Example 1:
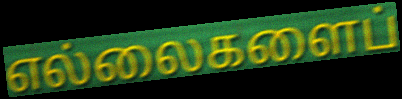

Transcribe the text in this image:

எல்லைகளைப்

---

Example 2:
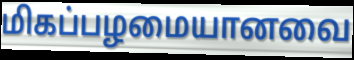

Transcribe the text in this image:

மிகப்பழமையானவை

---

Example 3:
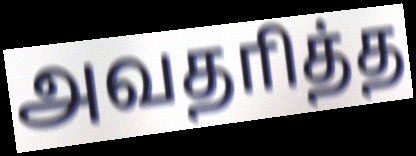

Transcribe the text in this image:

அவதரித்த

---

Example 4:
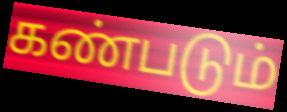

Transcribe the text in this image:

கண்படும்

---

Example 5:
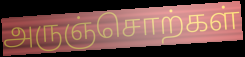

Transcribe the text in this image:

அருஞ்சொற்கள்